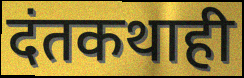
दंतकथाही